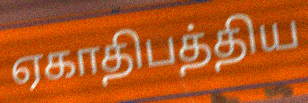
ஏகாதிபத்திய